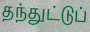
தந்துட்டுப்